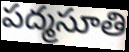
పద్మసూతి